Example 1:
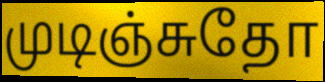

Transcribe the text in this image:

முடிஞ்சுதோ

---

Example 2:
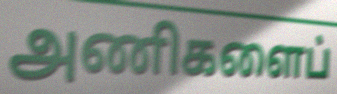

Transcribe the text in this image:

அணிகளைப்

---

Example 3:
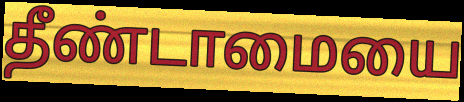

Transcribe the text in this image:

தீண்டாமையை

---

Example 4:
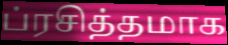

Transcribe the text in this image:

ப்ரசித்தமாக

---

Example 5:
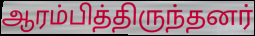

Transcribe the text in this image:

ஆரம்பித்திருந்தனர்